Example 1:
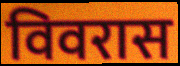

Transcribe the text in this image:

विवरास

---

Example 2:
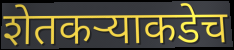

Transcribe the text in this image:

शेतकऱ्याकडेच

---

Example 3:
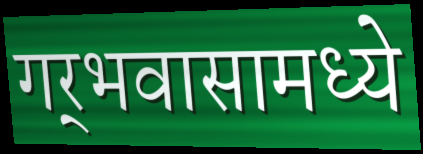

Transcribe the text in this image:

गर्भवासामध्ये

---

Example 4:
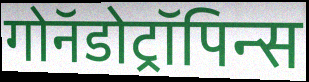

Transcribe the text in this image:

गोनॅडोट्रॉपिन्स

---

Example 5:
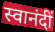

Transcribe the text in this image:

स्वानंदीं